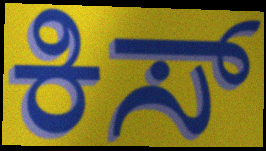
ಕಿಸ್